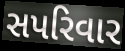
સપરિવાર